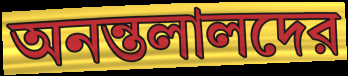
অনন্তলালদের